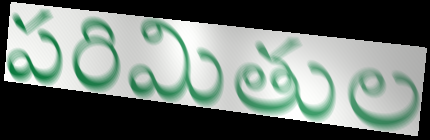
పరిమితుల